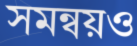
সমন্বয়ও